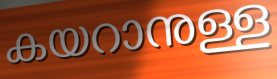
കയറാനുള്ള